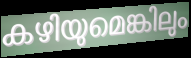
കഴിയുമെങ്കിലും